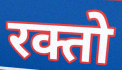
रक्तो